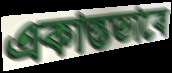
একান্তভাবে